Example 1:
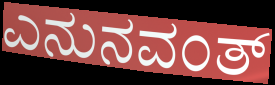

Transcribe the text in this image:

ಎನುನವಂತ್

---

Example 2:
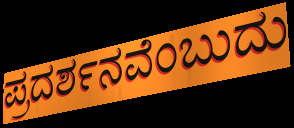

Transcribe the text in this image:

ಪ್ರದರ್ಶನವೆಂಬುದು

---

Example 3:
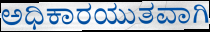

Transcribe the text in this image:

ಅಧಿಕಾರಯುತವಾಗಿ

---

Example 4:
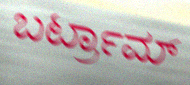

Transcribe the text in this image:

ಬರ್ಟ್ರಾಮ್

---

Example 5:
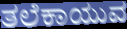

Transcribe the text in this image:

ತಲೆಕಾಯುವ